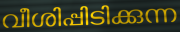
വീശിപ്പിടിക്കുന്ന